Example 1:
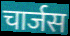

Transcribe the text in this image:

चार्जस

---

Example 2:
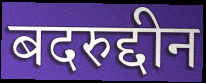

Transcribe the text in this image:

बदरुद्दीन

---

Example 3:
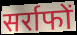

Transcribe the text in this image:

सर्राफों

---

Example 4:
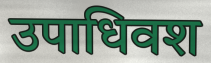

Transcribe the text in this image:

उपाधिवश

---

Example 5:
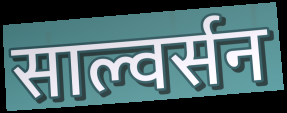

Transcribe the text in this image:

साल्वर्सन